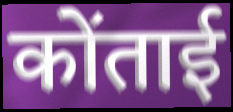
कोंताई